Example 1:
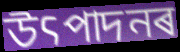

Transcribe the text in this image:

উৎপাদনৰ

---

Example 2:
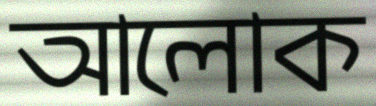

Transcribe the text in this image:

আলোক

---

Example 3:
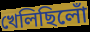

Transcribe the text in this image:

খেলিছিলোঁ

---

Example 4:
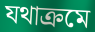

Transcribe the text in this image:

যথাক্ৰমে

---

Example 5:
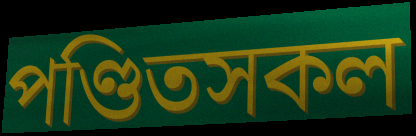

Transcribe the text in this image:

পণ্ডিতসকল